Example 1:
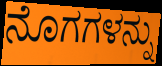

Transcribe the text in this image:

ನೊಗಗಳನ್ನು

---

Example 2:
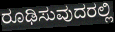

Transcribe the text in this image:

ರೂಢಿಸುವುದರಲ್ಲಿ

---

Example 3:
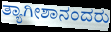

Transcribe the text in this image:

ತ್ಯಾಗೀಶಾನಂದರು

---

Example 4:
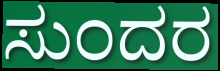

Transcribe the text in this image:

ಸುಂದರ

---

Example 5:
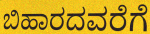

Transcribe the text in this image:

ಬಿಹಾರದವರೆಗೆ